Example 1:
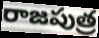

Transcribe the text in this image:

రాజపుత్ర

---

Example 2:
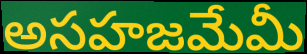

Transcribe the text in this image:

అసహజమేమీ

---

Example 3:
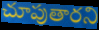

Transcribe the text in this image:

చూపుతారని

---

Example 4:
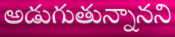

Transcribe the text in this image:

అడుగుతున్నానని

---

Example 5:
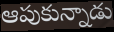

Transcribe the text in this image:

ఆపుకున్నాడు